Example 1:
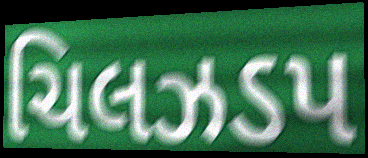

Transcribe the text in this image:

ચિલઝડપ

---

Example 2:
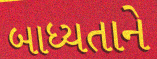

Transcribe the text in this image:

બાધ્યતાને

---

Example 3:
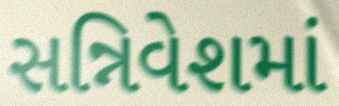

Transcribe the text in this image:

સન્નિવેશમાં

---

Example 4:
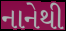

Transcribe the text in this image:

નાનેથી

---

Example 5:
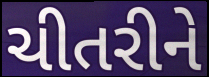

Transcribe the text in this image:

ચીતરીને